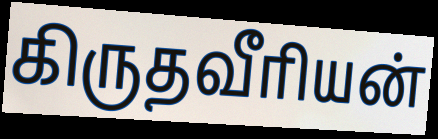
கிருதவீரியன்